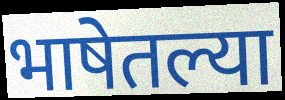
भाषेतल्या